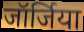
जॉर्जिया